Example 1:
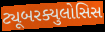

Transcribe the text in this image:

ટ્યૂબરક્યુલોસિસ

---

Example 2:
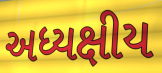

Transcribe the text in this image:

અધ્યક્ષીય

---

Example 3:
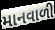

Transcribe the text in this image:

માનવાળી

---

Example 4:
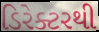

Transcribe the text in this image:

ડિરેક્ટરથી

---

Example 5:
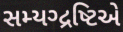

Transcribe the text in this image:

સમ્યગ્દ્રષ્ટિએ